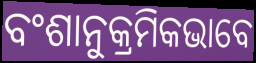
ବଂଶାନୁକ୍ରମିକଭାବେ